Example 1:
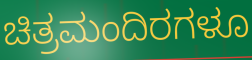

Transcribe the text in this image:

ಚಿತ್ರಮಂದಿರಗಳೂ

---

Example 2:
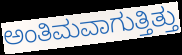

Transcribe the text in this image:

ಅಂತಿಮವಾಗುತ್ತಿತ್ತು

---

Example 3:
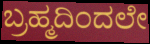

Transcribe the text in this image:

ಬ್ರಹ್ಮದಿಂದಲೇ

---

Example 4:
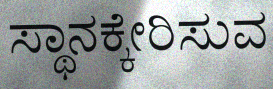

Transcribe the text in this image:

ಸ್ಥಾನಕ್ಕೇರಿಸುವ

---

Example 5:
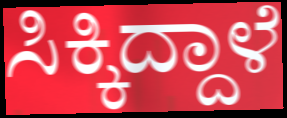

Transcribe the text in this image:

ಸಿಕ್ಕಿದ್ದಾಳೆ